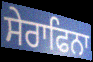
ਸੇਰਾਫਿਨਾ